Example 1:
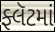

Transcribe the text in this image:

ફ્લૅટમાં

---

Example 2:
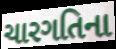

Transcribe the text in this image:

ચારગતિના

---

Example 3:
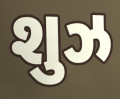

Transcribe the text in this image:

શુઝ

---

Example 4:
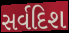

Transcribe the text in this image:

સર્વદિશ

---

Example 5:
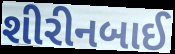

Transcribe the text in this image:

શીરીનબાઈ